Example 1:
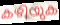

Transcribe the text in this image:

കഴിയുക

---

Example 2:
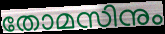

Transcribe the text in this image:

തോമസിനും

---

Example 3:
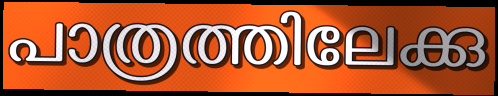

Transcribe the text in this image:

പാത്രത്തിലേക്കു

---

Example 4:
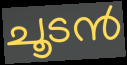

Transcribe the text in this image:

ചൂടൻ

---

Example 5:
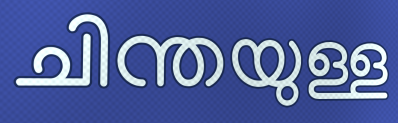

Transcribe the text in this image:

ചിന്തയുള്ള